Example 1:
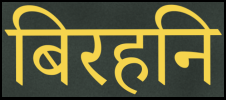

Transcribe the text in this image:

बिरहनि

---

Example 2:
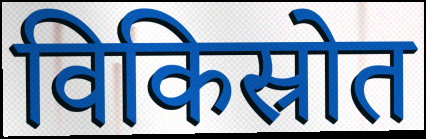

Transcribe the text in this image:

विकिस्रोत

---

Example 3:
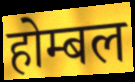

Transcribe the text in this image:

होम्बल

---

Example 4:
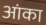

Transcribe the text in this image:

आंका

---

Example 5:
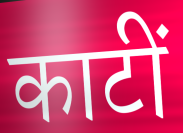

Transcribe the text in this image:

काटीं